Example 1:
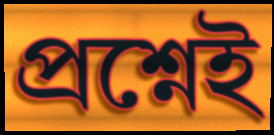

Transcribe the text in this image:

প্রশ্নেই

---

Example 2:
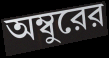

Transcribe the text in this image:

অম্বুরের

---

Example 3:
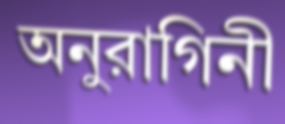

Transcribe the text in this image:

অনুরাগিনী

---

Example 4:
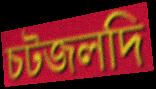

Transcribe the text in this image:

চটজলদি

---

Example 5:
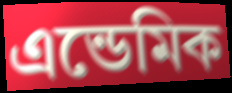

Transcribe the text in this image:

এন্ডেমিক